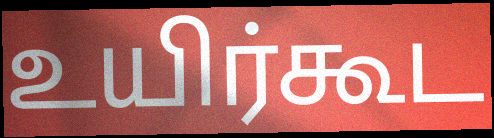
உயிர்கூட